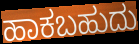
ಹಾಕಬಹುದು